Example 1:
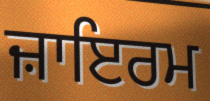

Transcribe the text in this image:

ਜ਼ਾਇਰਮ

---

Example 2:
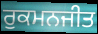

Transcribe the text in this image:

ਰੁਕਮਨਜੀਤ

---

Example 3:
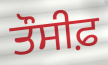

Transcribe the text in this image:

ਤੌਸੀਫ਼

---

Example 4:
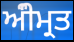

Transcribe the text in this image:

ਅੰੀਮ੍ਰਤ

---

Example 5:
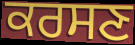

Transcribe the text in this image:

ਕਰਸਣ